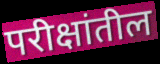
परीक्षांतील